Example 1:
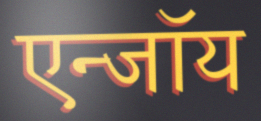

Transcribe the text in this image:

एन्जॉय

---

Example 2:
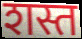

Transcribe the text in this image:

शस्त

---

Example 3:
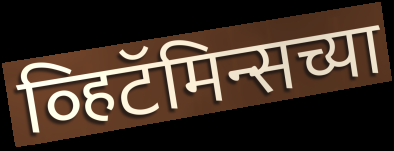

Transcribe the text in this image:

व्हिटॅमिन्सच्या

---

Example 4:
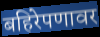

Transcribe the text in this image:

बहिरेपणावर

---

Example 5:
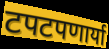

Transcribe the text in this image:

टपटपणार्या